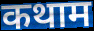
कथाम